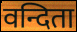
वन्दिता